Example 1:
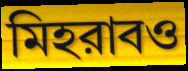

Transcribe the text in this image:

মিহরাবও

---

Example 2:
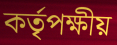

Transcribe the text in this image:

কর্তৃপক্ষীয়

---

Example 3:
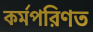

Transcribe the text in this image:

কর্মপরিণত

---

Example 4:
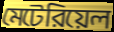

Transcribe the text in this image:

মেটেরিয়েল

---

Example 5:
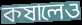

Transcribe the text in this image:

কষালেও